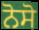
ਨੋਸੋ